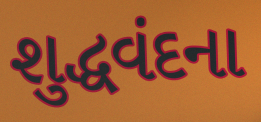
શુદ્ધવંદના